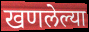
खणलेल्या